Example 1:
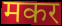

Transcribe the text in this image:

मकर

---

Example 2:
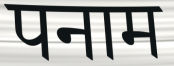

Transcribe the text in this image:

पनाम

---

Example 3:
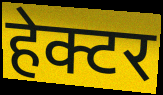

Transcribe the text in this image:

हेक्टर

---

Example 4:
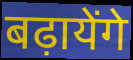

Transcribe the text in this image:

बढ़ायेंगे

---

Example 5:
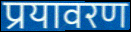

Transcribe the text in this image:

प्रयावरण